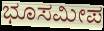
ಭೂಸಮೀಪ